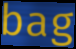
bag